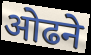
ओढने